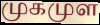
முகமுள